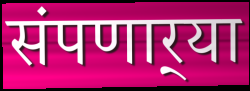
संपणार्या